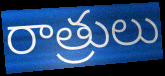
రాత్రులు